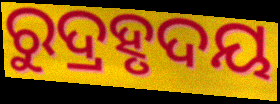
ରୁଦ୍ରହୃଦୟ